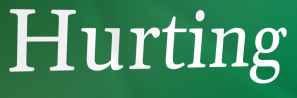
Hurting